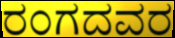
ರಂಗದವರ